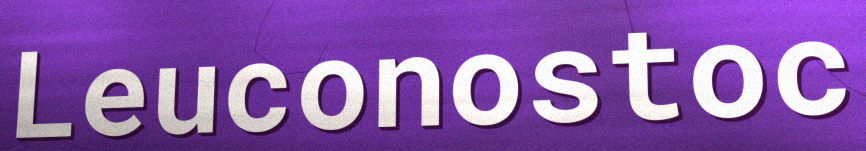
Leuconostoc